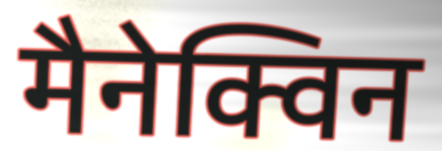
मैनेक्विन